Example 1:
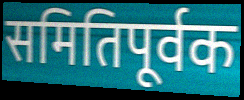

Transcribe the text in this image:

समितिपूर्वक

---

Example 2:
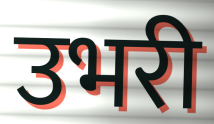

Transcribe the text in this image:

उभरी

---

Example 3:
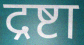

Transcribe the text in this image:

द्रष्टा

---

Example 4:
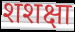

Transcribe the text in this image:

शशक्षा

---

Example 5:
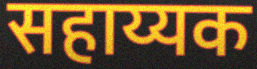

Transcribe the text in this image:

सहाय्यक